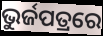
ଭୁର୍ଜପତ୍ରରେ